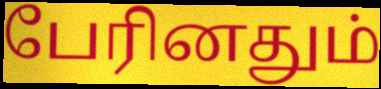
பேரினதும்